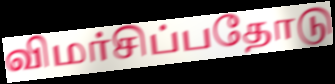
விமர்சிப்பதோடு